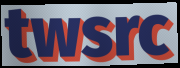
twsrc